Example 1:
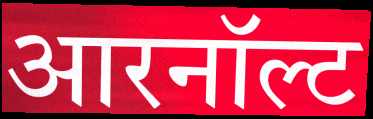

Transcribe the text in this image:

आरनॉल्ट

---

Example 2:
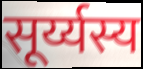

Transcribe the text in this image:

सूर्य्यस्य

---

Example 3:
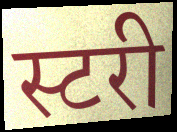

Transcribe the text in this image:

स्टरी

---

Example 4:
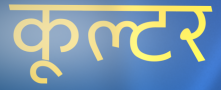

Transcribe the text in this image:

कूल्टर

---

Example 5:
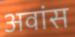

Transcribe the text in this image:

अवांस